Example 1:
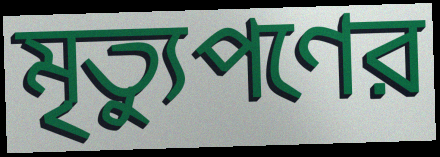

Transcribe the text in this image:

মৃত্যুপণের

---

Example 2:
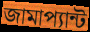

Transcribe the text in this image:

জামাপ্যান্ট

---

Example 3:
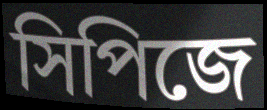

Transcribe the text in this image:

সিপিজে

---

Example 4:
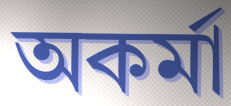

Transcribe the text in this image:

অকর্মা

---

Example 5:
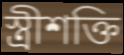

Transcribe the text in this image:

স্ত্রীশক্তি